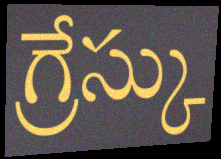
గ్రేస్కు